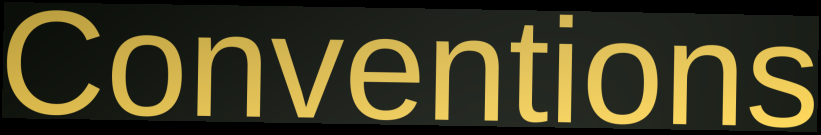
Conventions